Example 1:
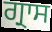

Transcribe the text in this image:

ਗ੍ਰਾਸ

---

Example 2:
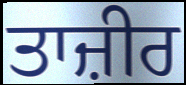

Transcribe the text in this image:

ਤਾਜ਼ੀਰ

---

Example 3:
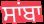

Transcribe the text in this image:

ਸਾਂਬਾ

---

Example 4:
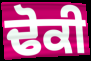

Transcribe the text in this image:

ਢੋਕੀ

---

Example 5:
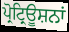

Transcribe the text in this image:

ਪ੍ਰੋਟ੍ਰਿਊਸ਼ਨਾਂ